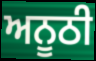
ਅਨੂਠੀ